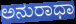
ಅನುರಾಧಾ